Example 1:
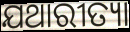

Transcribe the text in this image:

ଯଥାରୀତ୍ୟା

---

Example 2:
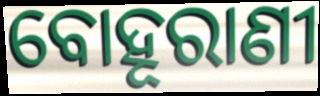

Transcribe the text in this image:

ବୋହୂରାଣୀ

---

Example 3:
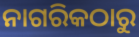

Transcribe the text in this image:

ନାଗରିକଠାରୁ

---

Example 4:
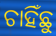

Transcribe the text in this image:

ଚାହିଁଛୁ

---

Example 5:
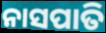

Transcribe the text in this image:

ନାସପାତି